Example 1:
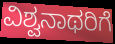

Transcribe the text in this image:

ವಿಶ್ವನಾಥರಿಗೆ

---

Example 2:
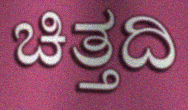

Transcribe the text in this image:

ಚಿತ್ತದಿ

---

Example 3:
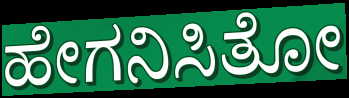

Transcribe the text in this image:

ಹೇಗನಿಸಿತೋ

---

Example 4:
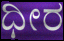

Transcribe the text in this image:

ಧೀರ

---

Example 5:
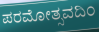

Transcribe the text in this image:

ಪರಮೋತ್ಸವದಿಂ